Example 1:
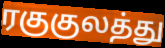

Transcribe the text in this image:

ரகுகுலத்து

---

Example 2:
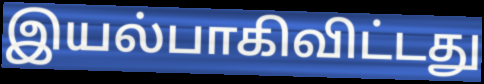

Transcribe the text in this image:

இயல்பாகிவிட்டது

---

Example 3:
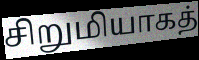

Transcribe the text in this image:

சிறுமியாகத்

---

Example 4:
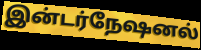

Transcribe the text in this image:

இன்டர்நேஷனல்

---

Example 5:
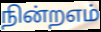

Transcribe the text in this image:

நின்றஎம்